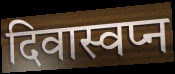
दिवास्‍वप्‍न